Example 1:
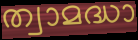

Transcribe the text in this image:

ത്വാമദ്ധാ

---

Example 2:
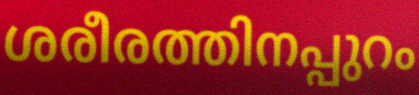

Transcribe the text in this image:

ശരീരത്തിനപ്പുറം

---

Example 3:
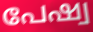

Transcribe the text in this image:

പേഷ്വ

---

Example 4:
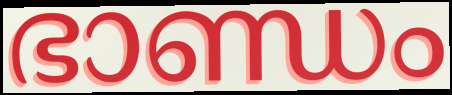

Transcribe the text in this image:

ഭാണ്ഡം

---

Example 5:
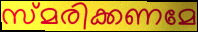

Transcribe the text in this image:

സ്മരിക്കണമേ